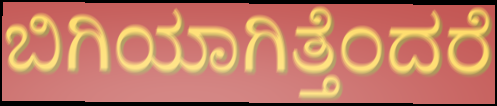
ಬಿಗಿಯಾಗಿತ್ತೆಂದರೆ